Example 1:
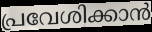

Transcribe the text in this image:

പ്രവേശിക്കാൻ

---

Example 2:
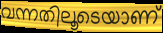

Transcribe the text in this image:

വന്നതിലൂടെയാണ്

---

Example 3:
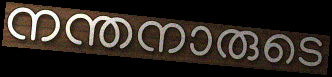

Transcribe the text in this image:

നന്തനാരുടെ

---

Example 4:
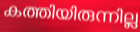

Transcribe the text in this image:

കത്തിയിരുന്നില്ല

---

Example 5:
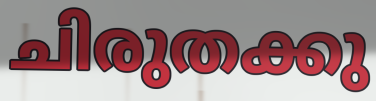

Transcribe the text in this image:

ചിരുതക്കു